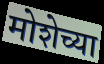
मोशेच्या